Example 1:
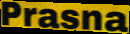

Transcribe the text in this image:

Prasna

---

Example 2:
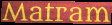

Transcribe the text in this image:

Matram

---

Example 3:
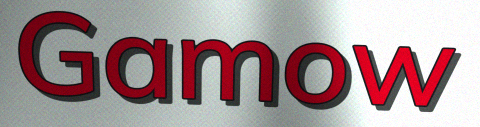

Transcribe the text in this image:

Gamow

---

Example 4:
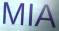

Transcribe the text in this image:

MIA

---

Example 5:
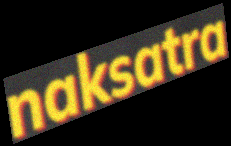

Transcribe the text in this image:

naksatra